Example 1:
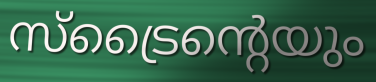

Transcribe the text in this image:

സ്ട്രൈന്റെയും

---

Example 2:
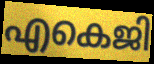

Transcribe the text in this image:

എകെജി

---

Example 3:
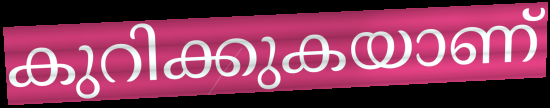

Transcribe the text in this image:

കുറിക്കുകയാണ്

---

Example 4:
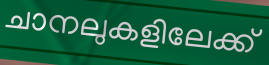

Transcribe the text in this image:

ചാനലുകളിലേക്ക്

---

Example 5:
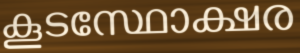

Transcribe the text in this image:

കൂടസ്ഥോക്ഷര